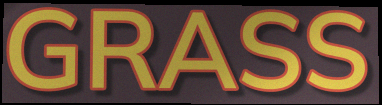
GRASS